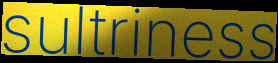
sultriness